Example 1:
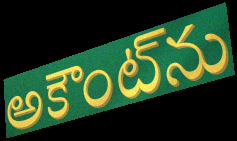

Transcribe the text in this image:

అకౌంట్‌ను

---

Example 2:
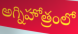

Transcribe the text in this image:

అగ్నిహోత్రంలో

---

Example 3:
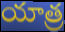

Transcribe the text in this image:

యాత్ర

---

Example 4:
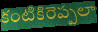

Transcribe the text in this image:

కంటికిరెప్పలా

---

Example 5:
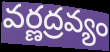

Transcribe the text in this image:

వర్ణద్రవ్యం